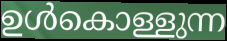
ഉൾകൊള്ളുന്ന